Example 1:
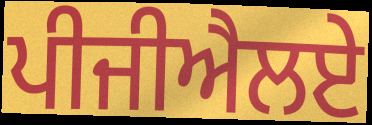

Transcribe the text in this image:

ਪੀਜੀਐਲਏ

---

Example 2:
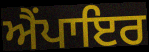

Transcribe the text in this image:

ਐਂਪਾਇਰ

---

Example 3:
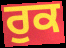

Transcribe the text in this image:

ਰੁਕ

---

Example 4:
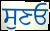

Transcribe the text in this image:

ਸੁਣਓ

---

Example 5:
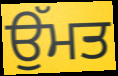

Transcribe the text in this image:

ਉੱਮਤ